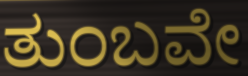
ತುಂಬವೇ